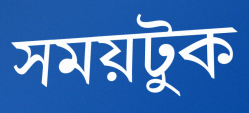
সময়টুক